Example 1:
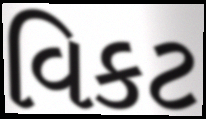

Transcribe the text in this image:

વિકટ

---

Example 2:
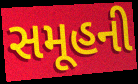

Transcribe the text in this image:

સમૂહની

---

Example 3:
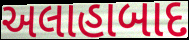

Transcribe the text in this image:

અલાહાબાદ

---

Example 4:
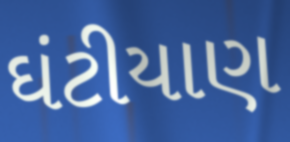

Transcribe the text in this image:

ઘંટીયાણ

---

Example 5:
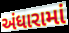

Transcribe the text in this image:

અંધારામાં